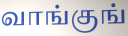
வாங்குங்